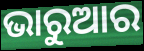
ଭାରୁଆର